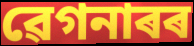
ৱেগনাৰৰ